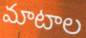
మాటాల